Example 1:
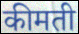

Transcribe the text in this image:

कीमती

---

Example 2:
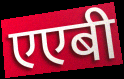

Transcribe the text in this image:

एएबी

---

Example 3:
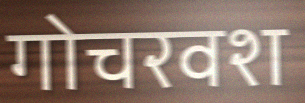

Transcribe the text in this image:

गोचरवश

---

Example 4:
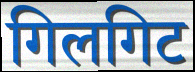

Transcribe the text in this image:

गिलगिट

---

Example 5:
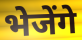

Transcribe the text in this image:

भेजेंगे